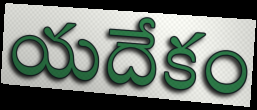
యదేకం